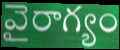
వైరాగ్యం